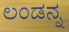
ಲಂಡನ್ನ